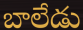
బాలేడు